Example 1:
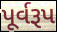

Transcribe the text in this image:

પૂર્વરૂપ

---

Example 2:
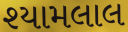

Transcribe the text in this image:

શ્યામલાલ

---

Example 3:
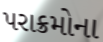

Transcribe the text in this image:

પરાક્રમોના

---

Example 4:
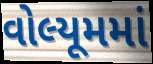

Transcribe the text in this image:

વોલ્યૂમમાં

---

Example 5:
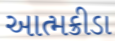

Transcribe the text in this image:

આત્મક્રીડા